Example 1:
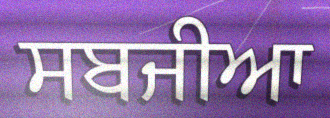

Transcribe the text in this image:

ਸਬਜੀਆ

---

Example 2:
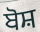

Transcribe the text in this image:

ਬੋਸ਼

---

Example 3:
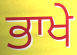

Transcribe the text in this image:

ਭਾਖੇ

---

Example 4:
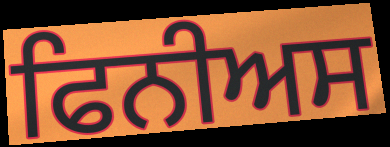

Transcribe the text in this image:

ਫਿਨੀਅਸ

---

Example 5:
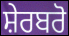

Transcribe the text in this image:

ਸ਼ੇਰਬਰੋ